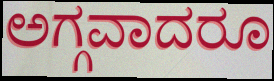
ಅಗ್ಗವಾದರೂ